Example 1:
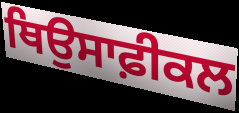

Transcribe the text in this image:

ਥਿਉਸਾਫ਼ੀਕਲ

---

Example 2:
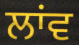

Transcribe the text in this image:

ਲਾਂਵ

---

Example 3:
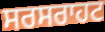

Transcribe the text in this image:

ਸਰਸਰਾਹਟ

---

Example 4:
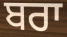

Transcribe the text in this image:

ਬਰਾ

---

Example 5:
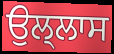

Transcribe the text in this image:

ਉਲ੍ਲਾਸ